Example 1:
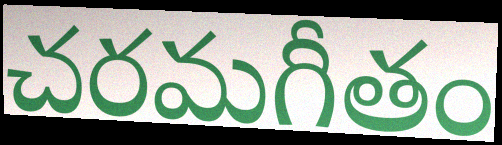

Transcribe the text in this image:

చరమగీతం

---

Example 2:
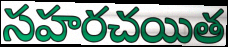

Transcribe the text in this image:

సహరచయిత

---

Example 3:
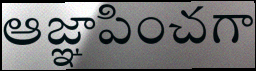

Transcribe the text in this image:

ఆజ్ఞాపించగా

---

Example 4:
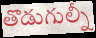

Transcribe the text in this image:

తొడుగుల్నీ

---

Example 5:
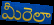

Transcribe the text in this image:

మీరెలా